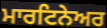
ਮਾਰਟਿਨੇਅਰ